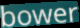
bower